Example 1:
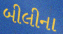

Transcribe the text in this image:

બીલીના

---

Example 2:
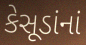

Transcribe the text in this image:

કેસૂડાંનાં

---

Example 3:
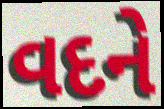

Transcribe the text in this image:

વદને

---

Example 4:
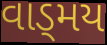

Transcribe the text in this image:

વાડ્મય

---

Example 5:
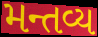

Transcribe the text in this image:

મન્તવ્ય